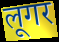
लूगर